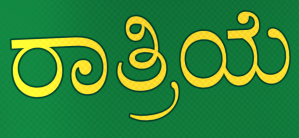
ರಾತ್ರಿಯೆ